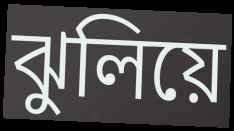
ঝুলিয়ে